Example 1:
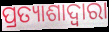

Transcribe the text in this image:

ପ୍ରତ୍ୟାଶାଦ୍ୱାରା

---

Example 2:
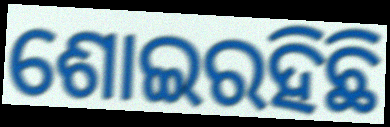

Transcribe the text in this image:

ଶୋଇରହିଛି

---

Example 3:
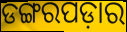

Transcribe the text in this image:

ଡଙ୍ଗରପଡ଼ାର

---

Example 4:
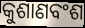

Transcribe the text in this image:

କୁଶାଣବଂଶ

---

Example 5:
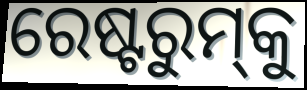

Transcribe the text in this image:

ରେଷ୍ଟରୁମ୍‌କୁ